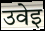
उवेइ